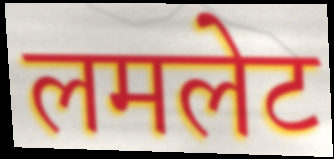
लमलेट